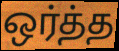
ஒர்த்த